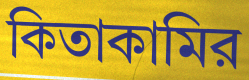
কিতাকামির